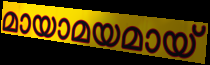
മായാമയമായ്